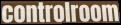
controlroom